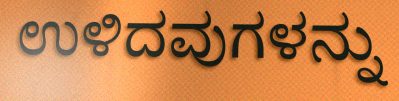
ಉಳಿದವುಗಳನ್ನು